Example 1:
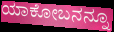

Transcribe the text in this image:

ಯಾಕೋಬನನ್ನೂ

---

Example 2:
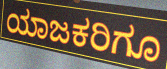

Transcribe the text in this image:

ಯಾಜಕರಿಗೂ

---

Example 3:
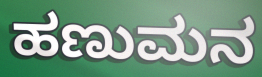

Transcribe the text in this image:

ಹಣುಮನ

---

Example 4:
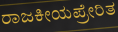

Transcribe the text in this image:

ರಾಜಕೀಯಪ್ರೇರಿತ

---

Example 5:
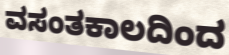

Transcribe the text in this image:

ವಸಂತಕಾಲದಿಂದ